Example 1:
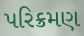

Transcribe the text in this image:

પરિક્રમણ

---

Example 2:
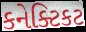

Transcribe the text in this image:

કનેક્ટિકટ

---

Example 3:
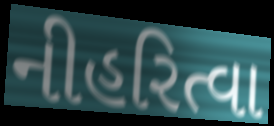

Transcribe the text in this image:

નીહરિત્વા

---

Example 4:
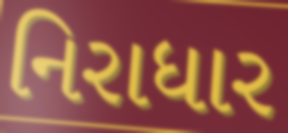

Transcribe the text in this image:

નિરાધાર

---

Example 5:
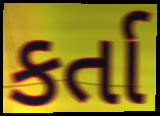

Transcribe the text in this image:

કર્તા